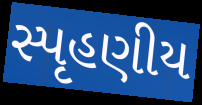
સ્પૃહણીય